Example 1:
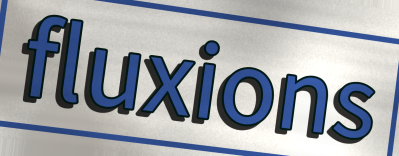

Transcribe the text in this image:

fluxions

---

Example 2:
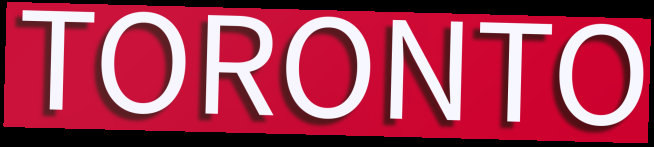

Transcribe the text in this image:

TORONTO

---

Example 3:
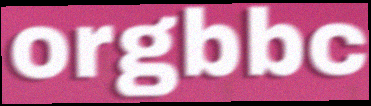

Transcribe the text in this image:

orgbbc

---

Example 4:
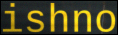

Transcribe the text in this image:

ishno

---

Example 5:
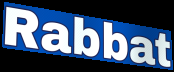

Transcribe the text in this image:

Rabbat